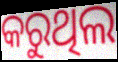
କରୁଥିଲ